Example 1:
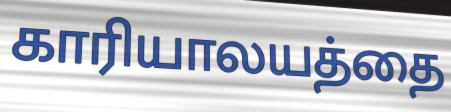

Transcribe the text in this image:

காரியாலயத்தை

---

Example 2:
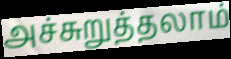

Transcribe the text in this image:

அச்சுறுத்தலாம்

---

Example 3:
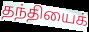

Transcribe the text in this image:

தந்தியைக்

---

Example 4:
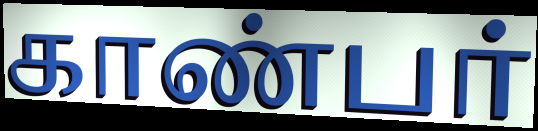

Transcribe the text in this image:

காண்பர்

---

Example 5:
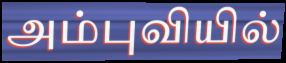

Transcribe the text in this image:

அம்புவியில்